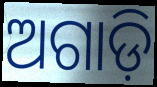
ଅଗାଡ଼ି